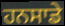
ਹਨਸਾਡੇ